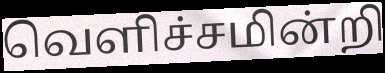
வெளிச்சமின்றி